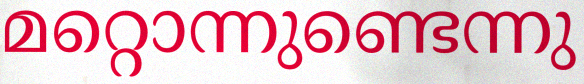
മറ്റൊന്നുണ്ടെന്നു